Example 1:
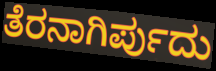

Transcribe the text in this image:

ತೆರನಾಗಿರ್ಪುದು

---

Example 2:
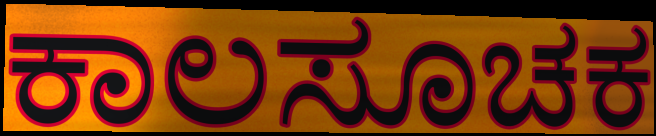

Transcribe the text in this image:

ಕಾಲಸೂಚಕ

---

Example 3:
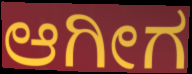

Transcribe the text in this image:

ಆಗೀಗ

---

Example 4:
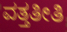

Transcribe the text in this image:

ವತ್ತತೀತಿ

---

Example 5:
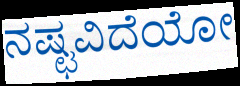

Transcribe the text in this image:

ನಷ್ಟವಿದೆಯೋ